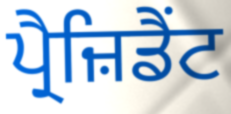
ਪ੍ਰੈਜ਼ਿਡੈਂਟ